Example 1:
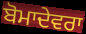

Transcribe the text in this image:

ਬੋਮਾਦੇਵਰਾ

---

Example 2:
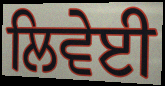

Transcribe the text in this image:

ਲਿਵੇਈ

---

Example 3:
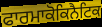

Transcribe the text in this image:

ਫਾਰਮਾਕੋਕਿਨੈਟਿਕ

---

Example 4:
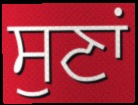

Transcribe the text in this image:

ਸੁਣਾਂ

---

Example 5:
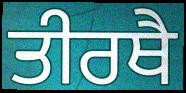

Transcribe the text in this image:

ਤੀਰਥੈ